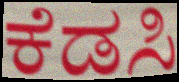
ಕೆಡಸಿ